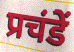
प्रचंडें